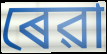
ৰেৱা